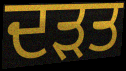
ਦੜਤ